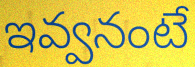
ఇవ్వనంటే